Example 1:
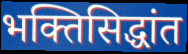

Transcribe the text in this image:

भक्तिसिद्धांत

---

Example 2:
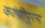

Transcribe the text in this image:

कांचीपुरम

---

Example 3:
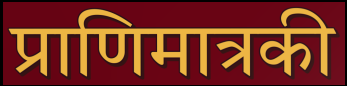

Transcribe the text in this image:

प्राणिमात्रकी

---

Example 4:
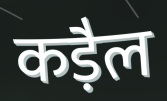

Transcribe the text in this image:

कड़ैल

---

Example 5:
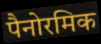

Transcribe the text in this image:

पैनोरमिक